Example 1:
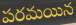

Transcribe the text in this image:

పరమయిన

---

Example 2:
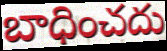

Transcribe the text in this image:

బాధించదు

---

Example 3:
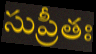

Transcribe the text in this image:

సుప్రీతః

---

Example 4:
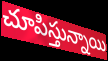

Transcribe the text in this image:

చూపిస్తున్నాయి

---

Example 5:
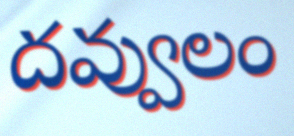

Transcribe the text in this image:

దవ్వులం